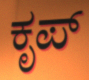
ಕೃಪ್